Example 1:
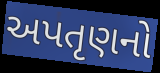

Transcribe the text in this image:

અપતૃણનો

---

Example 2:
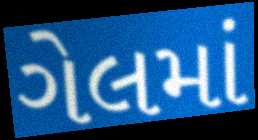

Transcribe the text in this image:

ગેલમાં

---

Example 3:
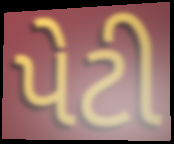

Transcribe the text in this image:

પેટી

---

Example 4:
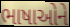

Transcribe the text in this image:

ભાષાઓને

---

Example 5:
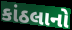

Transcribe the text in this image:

કાંઠલાનો